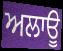
ਅਲਾਊ